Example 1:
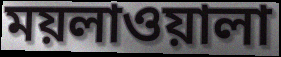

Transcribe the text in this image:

ময়লাওয়ালা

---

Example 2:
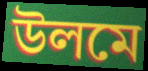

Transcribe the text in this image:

উলমে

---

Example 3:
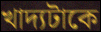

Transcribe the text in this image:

খাদ্যটাকে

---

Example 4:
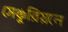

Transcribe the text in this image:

সেঞ্চুরিয়নে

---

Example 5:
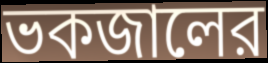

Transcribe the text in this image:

ভকজালের